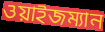
ওয়াইজম্যান